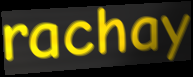
rachay